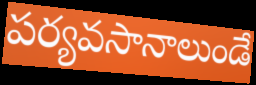
పర్యవసానాలుండే